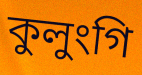
কুলুংগি